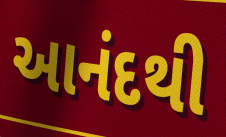
આનંદથી